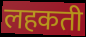
लहकती